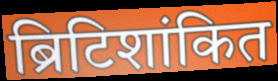
ब्रिटिशांकित